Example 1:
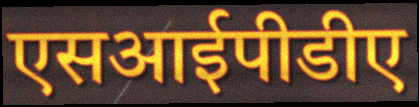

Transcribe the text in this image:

एसआईपीडीए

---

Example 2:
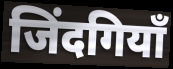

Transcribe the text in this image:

जिंदगियाँ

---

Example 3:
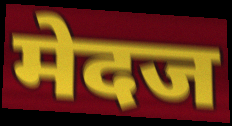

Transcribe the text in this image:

मेदज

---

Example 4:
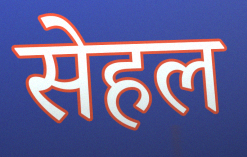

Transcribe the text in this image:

सेहल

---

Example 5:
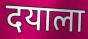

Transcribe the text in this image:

दयाला